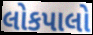
લોકપાલો